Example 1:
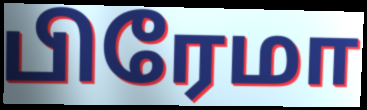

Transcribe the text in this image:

பிரேமா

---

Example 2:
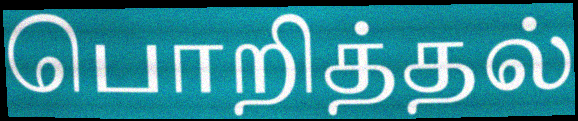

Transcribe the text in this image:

பொறித்தல்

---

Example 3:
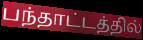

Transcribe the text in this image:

பந்தாட்டத்தில்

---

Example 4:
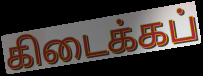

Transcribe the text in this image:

கிடைக்கப்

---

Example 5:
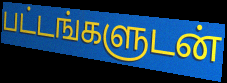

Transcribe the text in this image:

பட்டங்களுடன்